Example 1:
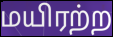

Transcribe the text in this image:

மயிரற்ற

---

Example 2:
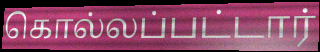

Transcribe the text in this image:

கொல்லப்பட்டார்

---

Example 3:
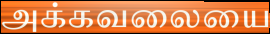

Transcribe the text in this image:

அக்கவலையை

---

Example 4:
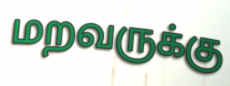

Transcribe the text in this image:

மறவருக்கு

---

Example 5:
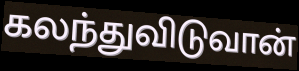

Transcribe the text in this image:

கலந்துவிடுவான்